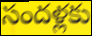
సందళ్లకు